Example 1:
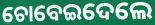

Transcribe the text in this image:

ଚୋବେଇଦେଲେ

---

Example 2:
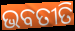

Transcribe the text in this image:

ଭବତୀତି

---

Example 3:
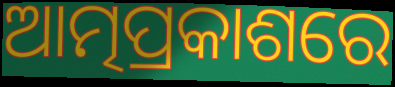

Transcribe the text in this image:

ଆତ୍ମପ୍ରକାଶରେ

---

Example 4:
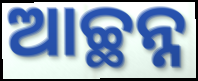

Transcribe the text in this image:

ଆଚ୍ଛନ୍ନ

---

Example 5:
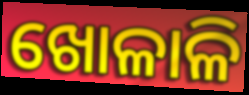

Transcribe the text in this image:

ଖୋଳାଳି